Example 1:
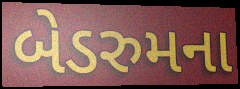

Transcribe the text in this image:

બેડરુમના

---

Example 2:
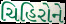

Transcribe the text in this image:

ચિહિરોને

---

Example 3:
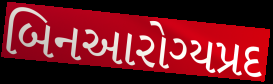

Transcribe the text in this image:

બિનઆરોગ્યપ્રદ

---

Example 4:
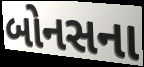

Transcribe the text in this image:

બોનસના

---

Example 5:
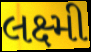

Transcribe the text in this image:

લક્ષ્મી